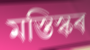
মস্তিস্কৰ